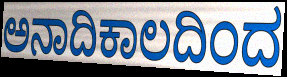
ಅನಾದಿಕಾಲದಿಂದ